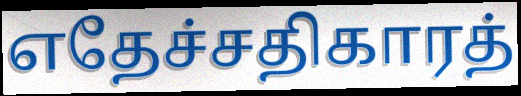
எதேச்சதிகாரத்